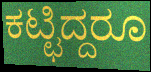
ಕಟ್ಟಿದ್ದರೂ